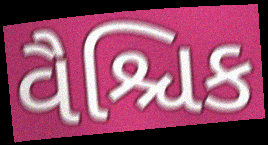
વૈશ્ચિક